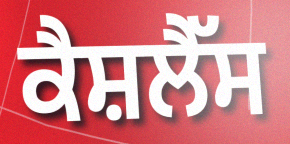
ਕੈਸ਼ਲੈੱਸ